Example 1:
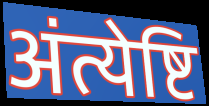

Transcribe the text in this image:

अंत्येष्टि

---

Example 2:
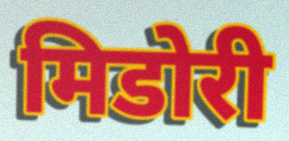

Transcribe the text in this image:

मिडोरी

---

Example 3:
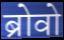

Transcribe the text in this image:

ब्रोवो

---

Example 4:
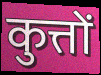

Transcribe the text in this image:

कुत्तों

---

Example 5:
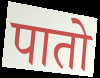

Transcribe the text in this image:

पातो